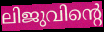
ലിജുവിന്റെ